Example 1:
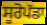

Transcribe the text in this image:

ਸੂਰੋਪੱਡਾ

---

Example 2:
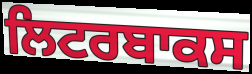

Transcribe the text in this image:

ਲਿਟਰਬਾਕਸ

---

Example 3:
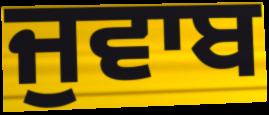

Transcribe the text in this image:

ਜੁਵਾਬ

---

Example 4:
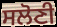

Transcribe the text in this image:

ਸਲੋਣੀ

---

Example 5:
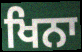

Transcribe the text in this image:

ਖਿਨਾ